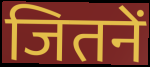
जितनें